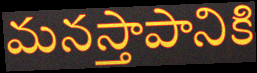
మనస్తాపానికి